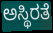
ಅಸ್ಥಿರತೆ